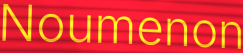
Noumenon